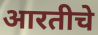
आरतीचे